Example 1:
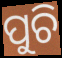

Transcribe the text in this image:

ପୁଚି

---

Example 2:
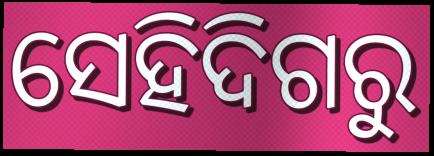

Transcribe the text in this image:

ସେହିଦିଗରୁ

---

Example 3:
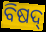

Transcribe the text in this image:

ବିଷଦ୍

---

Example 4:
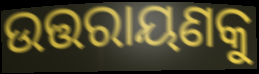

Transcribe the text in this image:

ଉତ୍ତରାୟଣକୁ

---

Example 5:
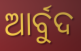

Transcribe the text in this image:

ଆର୍ବୁଦ